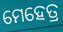
ମେହେତ୍ର